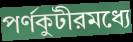
পর্ণকুটীরমধ্যে